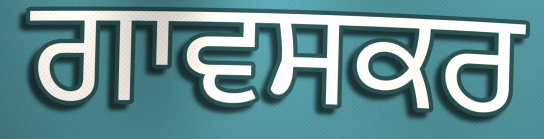
ਗਾਵਸਕਰ